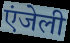
एंजेली